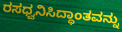
ರಸಧ್ವನಿಸಿದ್ಧಾಂತವನ್ನು